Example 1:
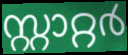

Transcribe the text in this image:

സ്റ്റാറ്റർ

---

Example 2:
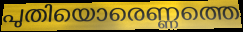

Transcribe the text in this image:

പുതിയൊരെണ്ണത്തെ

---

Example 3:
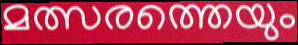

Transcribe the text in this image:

മത്സരത്തെയും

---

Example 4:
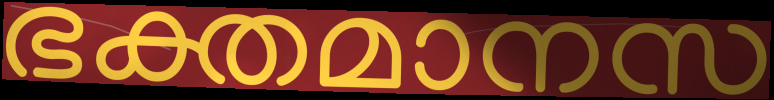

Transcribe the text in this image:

ഭക്തമാനസ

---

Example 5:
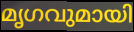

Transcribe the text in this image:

മൃഗവുമായി